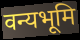
वन्यभूमि